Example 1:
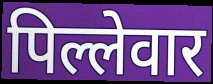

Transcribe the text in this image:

पिल्लेवार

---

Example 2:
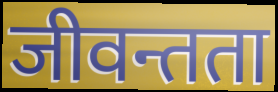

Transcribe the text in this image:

जीवन्तता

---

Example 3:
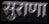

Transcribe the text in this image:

सुराणा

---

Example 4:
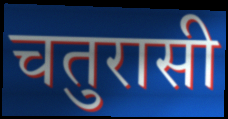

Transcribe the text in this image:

चतुरासी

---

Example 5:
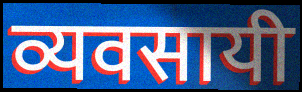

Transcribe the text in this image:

व्यवसायी